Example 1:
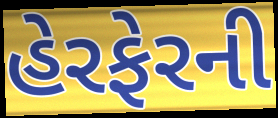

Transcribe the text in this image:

હેરફેરની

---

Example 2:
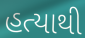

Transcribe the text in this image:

હત્યાથી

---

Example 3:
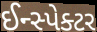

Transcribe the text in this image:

ઈન્સ્પેક્ટર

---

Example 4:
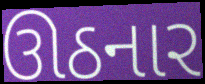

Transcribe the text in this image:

ઊઠનાર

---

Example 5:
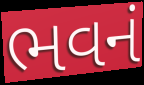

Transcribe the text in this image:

ભવનં